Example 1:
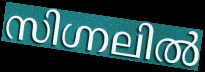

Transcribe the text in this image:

സിഗ്നലിൽ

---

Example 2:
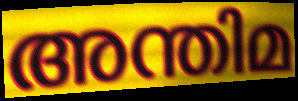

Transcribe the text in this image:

അന്തിമ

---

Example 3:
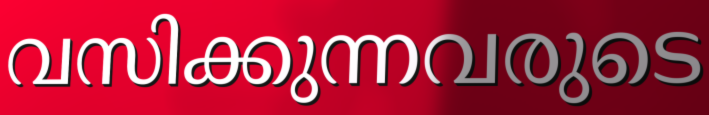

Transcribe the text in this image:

വസിക്കുന്നവരുടെ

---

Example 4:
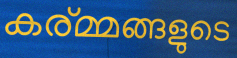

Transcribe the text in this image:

കര്മ്മങ്ങളുടെ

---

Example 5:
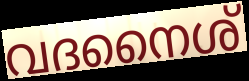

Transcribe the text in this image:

വദനൈശ്